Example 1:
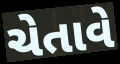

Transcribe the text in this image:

ચેતાવે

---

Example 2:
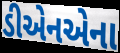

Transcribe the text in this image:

ડીએનએના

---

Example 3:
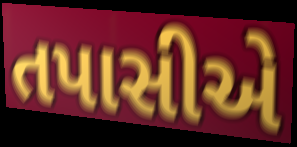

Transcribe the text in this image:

તપાસીએ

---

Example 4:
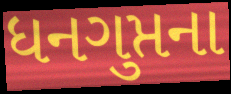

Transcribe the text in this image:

ધનગુપ્તના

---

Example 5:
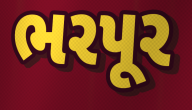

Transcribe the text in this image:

ભરપૂર